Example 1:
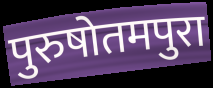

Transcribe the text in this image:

पुरुषोतमपुरा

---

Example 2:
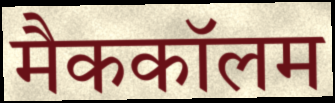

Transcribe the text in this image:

मैककॉलम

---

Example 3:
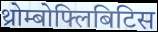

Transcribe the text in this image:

थ्रोम्बोफ्लिबिटिस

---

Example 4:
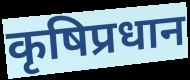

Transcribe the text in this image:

कृषिप्रधान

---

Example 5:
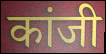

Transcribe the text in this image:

कांजी